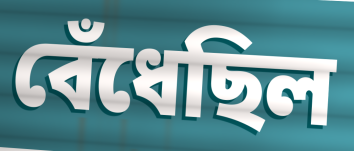
বেঁধেছিল